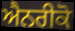
ਐਨਰੀਕੋ